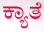
ಕ್ಯಾತೆ